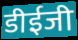
डीईजी